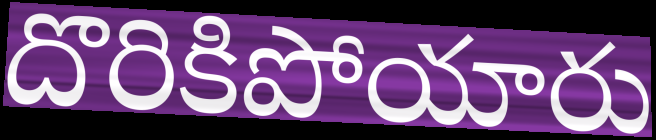
దొరికిపోయారు